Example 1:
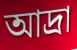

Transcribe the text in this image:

আদ্রা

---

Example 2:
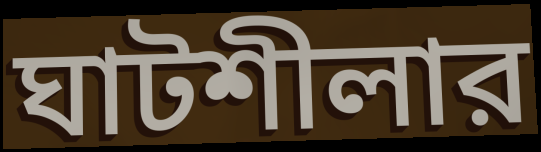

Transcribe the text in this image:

ঘাটশীলার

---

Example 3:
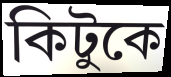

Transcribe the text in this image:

কিটুকে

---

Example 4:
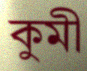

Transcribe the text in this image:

কুমী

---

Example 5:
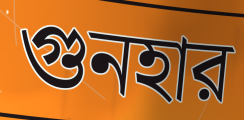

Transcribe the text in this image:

গুনহার